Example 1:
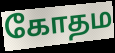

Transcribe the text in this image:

கோதம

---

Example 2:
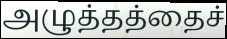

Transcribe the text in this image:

அழுத்தத்தைச்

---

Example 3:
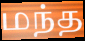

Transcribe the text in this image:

மந்த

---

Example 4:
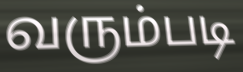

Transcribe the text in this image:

வரும்படி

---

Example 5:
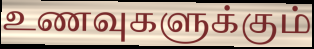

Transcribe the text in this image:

உணவுகளுக்கும்